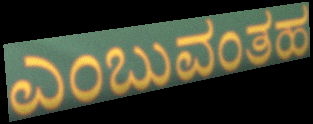
ಎಂಬುವಂತಹ